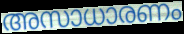
അസാധാരണം